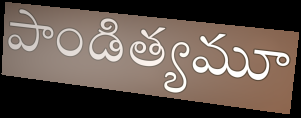
పాండిత్యమూ